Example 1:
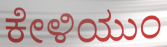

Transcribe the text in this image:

ಕೇಳಿಯುಂ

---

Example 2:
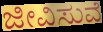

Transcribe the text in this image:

ಜೀವಿಸುವೆ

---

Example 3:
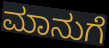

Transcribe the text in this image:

ಮಾನುಗೆ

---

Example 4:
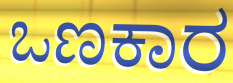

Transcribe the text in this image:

ಒಣಕಾರ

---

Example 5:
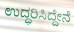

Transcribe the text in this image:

ಉದ್ಧರಿಸಿದ್ದೇನೆ